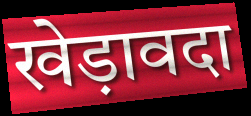
खेड़ावदा